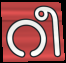
റീ